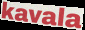
kavala